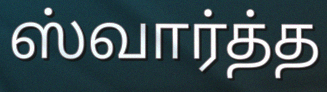
ஸ்வார்த்த